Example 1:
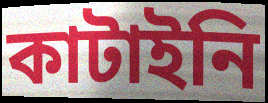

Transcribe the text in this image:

কাটাইনি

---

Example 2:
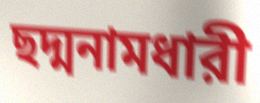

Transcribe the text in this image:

ছদ্মনামধারী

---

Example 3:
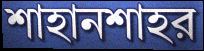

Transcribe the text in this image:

শাহানশাহর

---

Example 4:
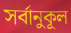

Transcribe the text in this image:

সর্বানুকূল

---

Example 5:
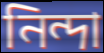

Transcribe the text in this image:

নিন্দা